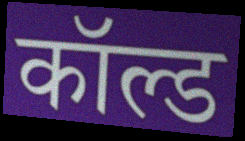
कॉल्ड